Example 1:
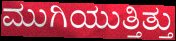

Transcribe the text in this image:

ಮುಗಿಯುತ್ತಿತ್ತು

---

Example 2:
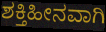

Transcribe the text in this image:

ಶಕ್ತಿಹೀನವಾಗಿ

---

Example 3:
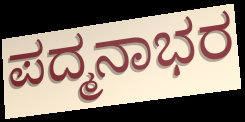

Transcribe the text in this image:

ಪದ್ಮನಾಭರ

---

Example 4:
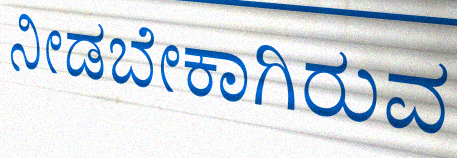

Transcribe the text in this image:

ನೀಡಬೇಕಾಗಿರುವ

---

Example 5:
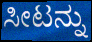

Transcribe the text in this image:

ಸೀಟನ್ನು